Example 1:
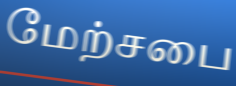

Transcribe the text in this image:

மேற்சபை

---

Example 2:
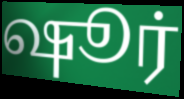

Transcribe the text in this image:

ஷூர்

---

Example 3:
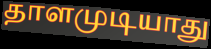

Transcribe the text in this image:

தாளமுடியாது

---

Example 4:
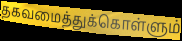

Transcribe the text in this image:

தகவமைத்துக்கொள்ளும்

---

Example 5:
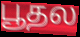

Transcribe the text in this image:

பூதல